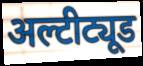
अल्टीट्यूड